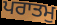
ਪਰਾਤਮੁ